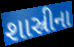
શાસ્રીના